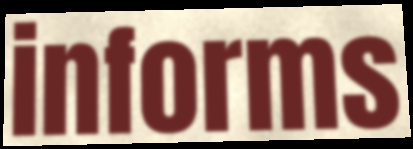
informs